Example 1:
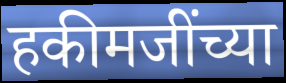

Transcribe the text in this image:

हकीमजींच्या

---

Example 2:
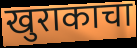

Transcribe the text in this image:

खुराकाचा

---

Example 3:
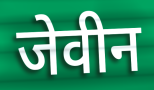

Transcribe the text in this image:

जेवीन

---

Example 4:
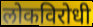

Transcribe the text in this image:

लोकविरोधी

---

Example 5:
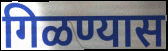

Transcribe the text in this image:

गिळण्यास